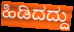
ಹಿಡಿದದ್ದು